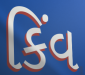
કિંવ